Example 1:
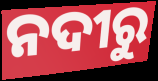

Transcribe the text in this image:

ନଦୀରୁ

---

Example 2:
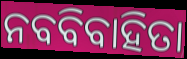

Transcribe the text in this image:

ନବବିବାହିତା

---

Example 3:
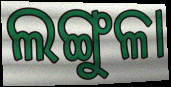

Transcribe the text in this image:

ଲଙ୍ଗୁଳା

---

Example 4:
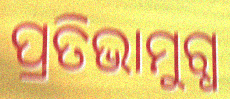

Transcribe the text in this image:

ପ୍ରତିଭାମୁଗ୍ଧ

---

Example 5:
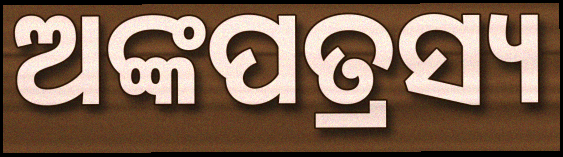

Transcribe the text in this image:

ଅଙ୍କପତ୍ରସ୍ୟ